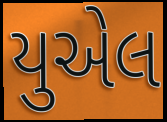
યુએલ